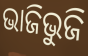
ଭାଜିଭୁଜି